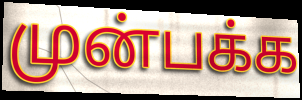
முன்பக்க